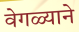
वेगळ्याने